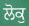
ਲੋਕੁ